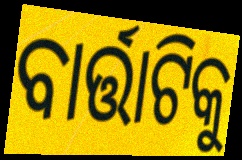
ବାର୍ତ୍ତାଟିକୁ